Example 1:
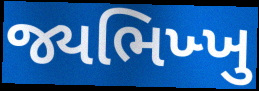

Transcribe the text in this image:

જ્યભિખ્ખુ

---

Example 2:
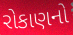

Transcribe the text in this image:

રોકાણનો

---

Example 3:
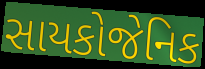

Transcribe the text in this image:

સાયકોજેનિક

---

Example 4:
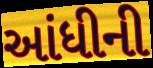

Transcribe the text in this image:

આંધીની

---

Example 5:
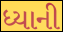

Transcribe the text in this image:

ધ્યાની